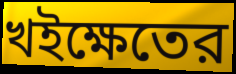
খইক্ষেতের